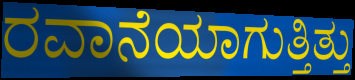
ರವಾನೆಯಾಗುತ್ತಿತ್ತು